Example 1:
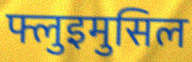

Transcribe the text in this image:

फ्लुइमुसिल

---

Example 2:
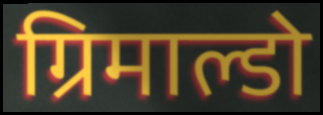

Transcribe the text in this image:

ग्रिमाल्डो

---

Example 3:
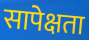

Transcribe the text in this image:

सापेक्षता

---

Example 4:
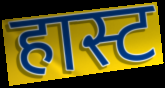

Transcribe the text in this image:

हास्ट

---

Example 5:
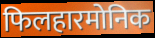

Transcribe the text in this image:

फिलहारमोनिक